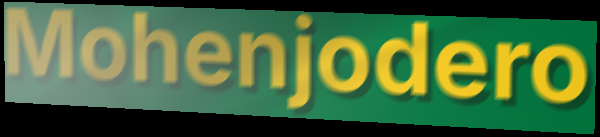
Mohenjodero